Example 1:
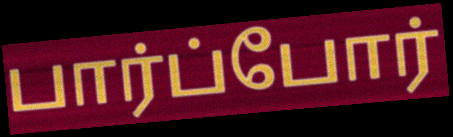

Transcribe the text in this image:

பார்ப்போர்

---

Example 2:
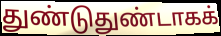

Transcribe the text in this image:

துண்டுதுண்டாகக்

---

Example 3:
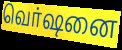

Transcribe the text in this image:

வெர்ஷனை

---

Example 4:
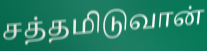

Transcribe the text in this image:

சத்தமிடுவான்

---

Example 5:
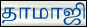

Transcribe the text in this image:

தாமாஜி